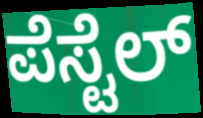
ಪೆಸ್ಟೆಲ್